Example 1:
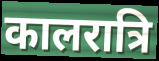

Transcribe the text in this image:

कालरात्रि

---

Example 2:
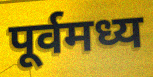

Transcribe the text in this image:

पूर्वमध्य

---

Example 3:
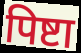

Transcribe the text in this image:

पिष्टा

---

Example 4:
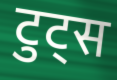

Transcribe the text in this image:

टुट्स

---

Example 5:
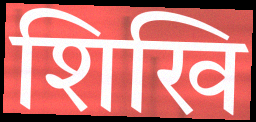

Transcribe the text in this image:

शिखि